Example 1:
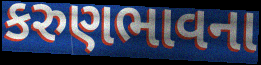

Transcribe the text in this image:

કરુણભાવના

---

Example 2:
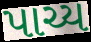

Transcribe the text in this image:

પાચ્ય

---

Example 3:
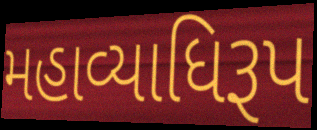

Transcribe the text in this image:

મહાવ્યાધિરૂપ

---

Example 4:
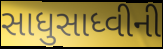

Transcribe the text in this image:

સાધુસાધ્વીની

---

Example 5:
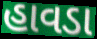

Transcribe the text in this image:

હાવડા